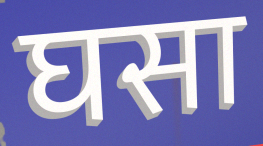
घसा